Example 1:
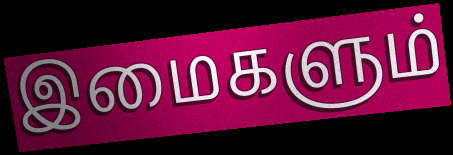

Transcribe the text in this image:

இமைகளும்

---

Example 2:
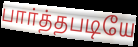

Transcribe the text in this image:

பார்த்தபடியே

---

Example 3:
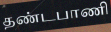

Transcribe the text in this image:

தண்டபாணி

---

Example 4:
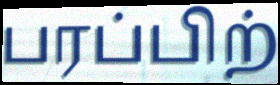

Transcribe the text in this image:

பரப்பிற்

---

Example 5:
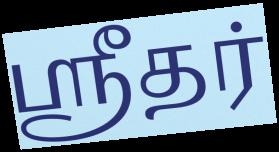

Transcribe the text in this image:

ஸ்ரீதர்